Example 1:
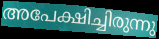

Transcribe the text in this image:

അപേക്ഷിച്ചിരുന്നു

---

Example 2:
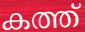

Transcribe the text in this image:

കത്ത്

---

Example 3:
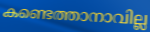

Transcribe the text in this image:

കണ്ടെത്താനാവില്ല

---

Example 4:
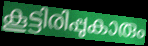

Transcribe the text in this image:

കൂട്ടിരിപ്പുകാരും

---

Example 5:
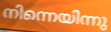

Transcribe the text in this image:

നിന്നെയിന്നു